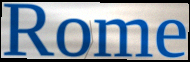
Rome